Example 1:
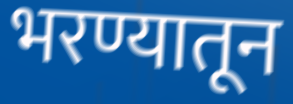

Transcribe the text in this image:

भरण्यातून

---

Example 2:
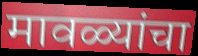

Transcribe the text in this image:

मावळ्यांचा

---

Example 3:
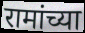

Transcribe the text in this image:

रामांच्या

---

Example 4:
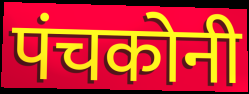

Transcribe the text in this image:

पंचकोनी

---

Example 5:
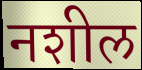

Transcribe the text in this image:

नशील